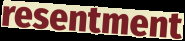
resentment